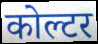
कोल्टर